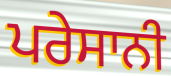
ਪਰੇਸਾਨੀ